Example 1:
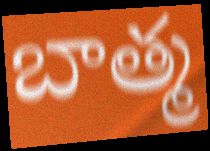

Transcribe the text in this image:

బాత్మ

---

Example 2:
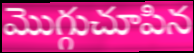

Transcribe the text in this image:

మొగ్గుచూపిన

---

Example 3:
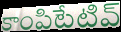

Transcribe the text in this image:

కాంపిటేటివ్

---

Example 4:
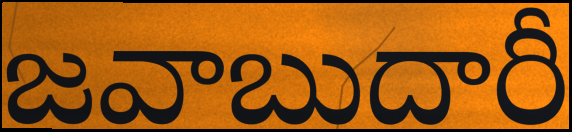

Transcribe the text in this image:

జవాబుదారీ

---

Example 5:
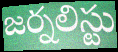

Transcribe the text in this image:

జర్నలిస్టు